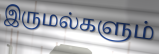
இருமல்களும்